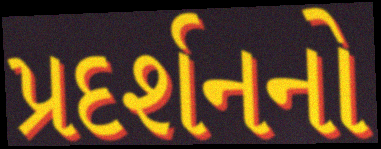
પ્રદર્શનનો